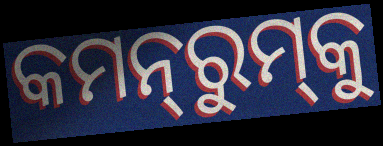
କମନ୍‍ରୁମ୍‍କୁ